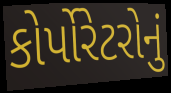
કોર્પોરેટરોનું